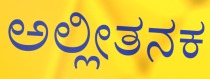
ಅಲ್ಲೀತನಕ